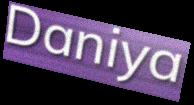
Daniya